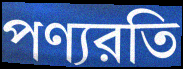
পণ্যরতি